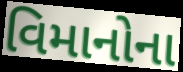
વિમાનોના